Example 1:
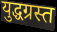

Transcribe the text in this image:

युद्धग्रस्त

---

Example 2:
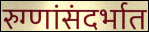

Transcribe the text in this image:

रुग्णांसंदर्भात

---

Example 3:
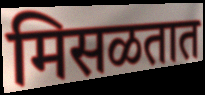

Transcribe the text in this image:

मिसळतात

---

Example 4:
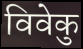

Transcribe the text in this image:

विवेकु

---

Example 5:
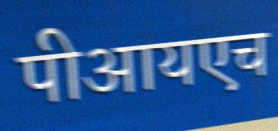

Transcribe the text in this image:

पीआयएच